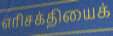
எரிசக்தியைக்